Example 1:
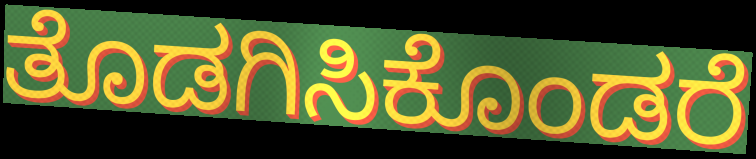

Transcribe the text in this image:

ತೊಡಗಿಸಿಕೊಂಡರೆ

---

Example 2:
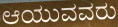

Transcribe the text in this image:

ಆಯುವವರು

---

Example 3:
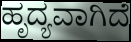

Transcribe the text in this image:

ಹೃದ್ಯವಾಗಿದೆ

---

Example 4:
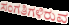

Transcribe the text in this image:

ಸಂಗತಿಗಳಿರುವ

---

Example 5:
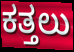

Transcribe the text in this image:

ಕತ್ತಲು